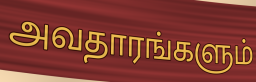
அவதாரங்களும்